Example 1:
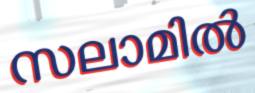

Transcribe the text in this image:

സലാമിൽ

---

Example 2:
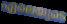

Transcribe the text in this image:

ഏലെയുടെ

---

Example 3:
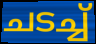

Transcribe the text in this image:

ചടച്ച്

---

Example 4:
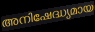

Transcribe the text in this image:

അനിഷേദ്ധ്യമായ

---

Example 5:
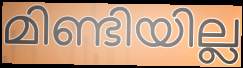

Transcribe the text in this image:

മിണ്ടിയില്ല